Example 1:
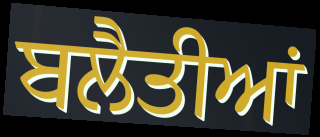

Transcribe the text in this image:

ਬਲੈਤੀਆਂ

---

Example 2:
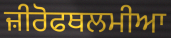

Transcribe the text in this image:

ਜ਼ੀਰੋਫਥਲਮੀਆ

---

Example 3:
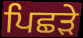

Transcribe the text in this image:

ਪਿਛੜੇ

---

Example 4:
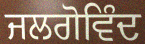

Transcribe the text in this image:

ਜਲਗੋਵਿੰਦ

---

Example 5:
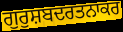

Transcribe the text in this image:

ਗੁਰੁਸ਼ਬਦਰਤਨਾਕਰ